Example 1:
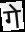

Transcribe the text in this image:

गे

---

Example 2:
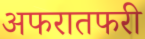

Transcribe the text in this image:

अफरातफरी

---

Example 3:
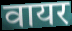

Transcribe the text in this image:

वायर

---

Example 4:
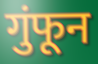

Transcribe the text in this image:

गुंफून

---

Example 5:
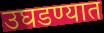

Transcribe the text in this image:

उघडण्यात